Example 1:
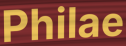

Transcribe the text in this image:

Philae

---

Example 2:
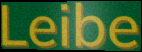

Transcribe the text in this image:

Leibe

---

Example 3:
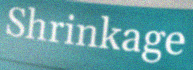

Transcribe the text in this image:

Shrinkage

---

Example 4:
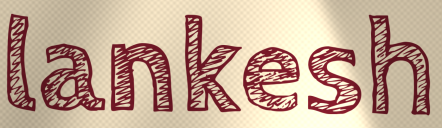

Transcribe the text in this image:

lankesh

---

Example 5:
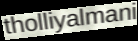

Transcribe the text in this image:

tholliyalmani